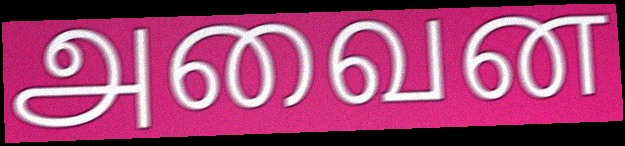
அவைன